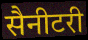
सैनीटरी